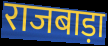
राजबाड़ा